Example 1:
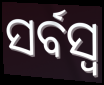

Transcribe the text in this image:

ସର୍ବସ୍ୱ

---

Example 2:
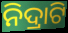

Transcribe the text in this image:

ନିଦ୍ରାଟି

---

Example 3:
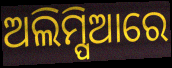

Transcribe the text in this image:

ଅଲିମ୍ପିଆରେ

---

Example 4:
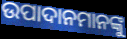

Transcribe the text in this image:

ଉପାଦାନମାନଙ୍କୁ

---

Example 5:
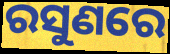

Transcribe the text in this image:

ରସୁଣରେ